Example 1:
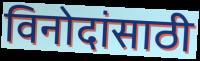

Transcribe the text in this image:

विनोदांसाठी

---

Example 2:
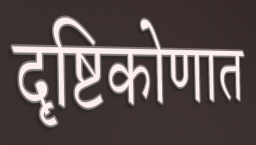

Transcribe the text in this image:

दृष्टिकोणात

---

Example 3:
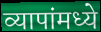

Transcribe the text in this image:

व्यापांमध्ये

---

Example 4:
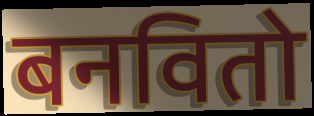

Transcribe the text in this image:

बनवितो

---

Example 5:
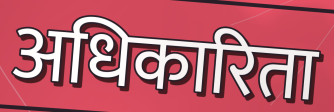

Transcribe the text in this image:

अधिकारिता